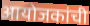
आयोजकांची